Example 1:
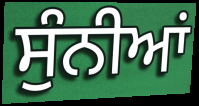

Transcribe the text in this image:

ਸੁੰਨੀਆਂ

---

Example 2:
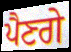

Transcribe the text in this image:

ਪੈਣਗੇ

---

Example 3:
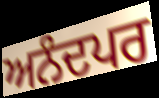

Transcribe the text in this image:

ਅਨੰਦਪਰ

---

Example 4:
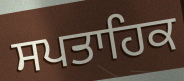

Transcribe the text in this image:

ਸਪਤਾਹਿਕ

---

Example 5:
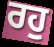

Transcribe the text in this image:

ਰਹੁ